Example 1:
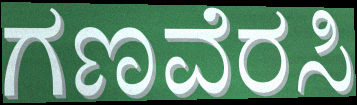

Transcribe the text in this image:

ಗಣವೆರಸಿ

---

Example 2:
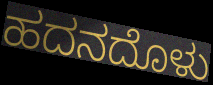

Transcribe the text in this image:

ಹದನದೊಳು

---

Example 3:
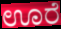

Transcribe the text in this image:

ಊರೆ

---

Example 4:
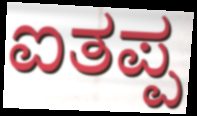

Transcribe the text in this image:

ಐತಪ್ಪ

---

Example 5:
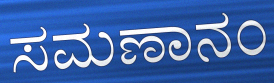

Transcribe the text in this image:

ಸಮಣಾನಂ